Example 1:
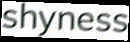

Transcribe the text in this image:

shyness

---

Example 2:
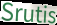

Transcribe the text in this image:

Srutis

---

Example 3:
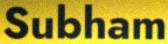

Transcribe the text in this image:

Subham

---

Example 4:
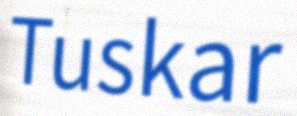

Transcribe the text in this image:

Tuskar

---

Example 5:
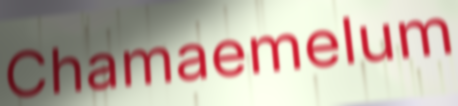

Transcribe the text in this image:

Chamaemelum